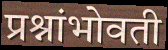
प्रश्नांभोवती